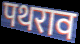
पथराव